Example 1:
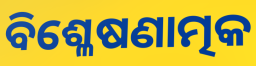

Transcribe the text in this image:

ବିଶ୍ଳେଷଣାତ୍ମକ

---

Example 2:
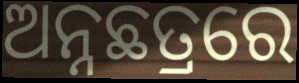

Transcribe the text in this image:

ଅନ୍ନଛତ୍ରରେ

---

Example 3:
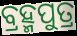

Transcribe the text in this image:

ବ୍ରହ୍ମପୁତ୍ର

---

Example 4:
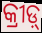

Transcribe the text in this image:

କ୍ରୀଡ଼୍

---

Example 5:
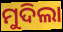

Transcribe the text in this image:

ମୁଦିଲା